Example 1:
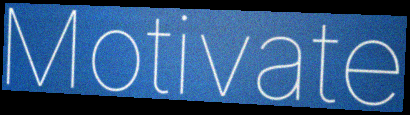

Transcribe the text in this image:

Motivate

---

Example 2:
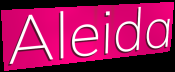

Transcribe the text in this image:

Aleida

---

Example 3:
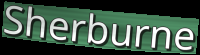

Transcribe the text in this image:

Sherburne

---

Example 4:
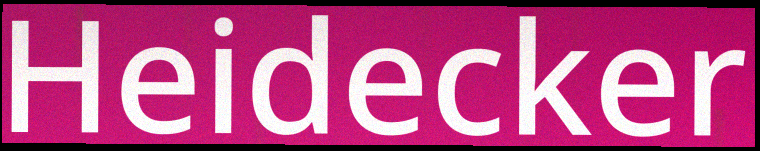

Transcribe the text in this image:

Heidecker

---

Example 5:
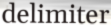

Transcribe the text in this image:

delimiter